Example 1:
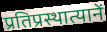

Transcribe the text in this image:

प्रतिप्रस्थात्यानें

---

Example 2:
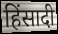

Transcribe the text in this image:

हिंसादी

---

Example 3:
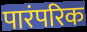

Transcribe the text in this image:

पारंपरिक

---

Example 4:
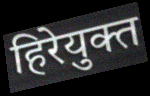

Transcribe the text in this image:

हिरेयुक्त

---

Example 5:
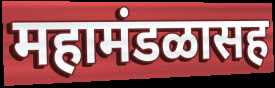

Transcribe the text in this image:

महामंडळासह